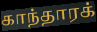
காந்தாரக்